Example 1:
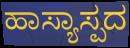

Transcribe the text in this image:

ಹಾಸ್ಯಾಸ್ಪದ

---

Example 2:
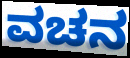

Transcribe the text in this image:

ವಚನ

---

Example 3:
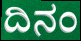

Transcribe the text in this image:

ದಿನಂ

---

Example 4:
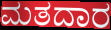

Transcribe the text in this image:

ಮತದಾರ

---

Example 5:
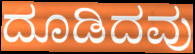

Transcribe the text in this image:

ದೂಡಿದವು